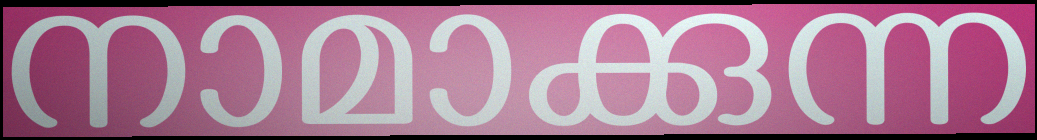
നാമാക്കുന്ന